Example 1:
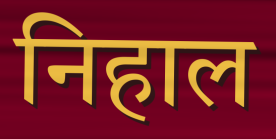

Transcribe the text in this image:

निहाल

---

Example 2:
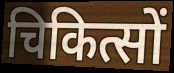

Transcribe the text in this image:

चिकित्सों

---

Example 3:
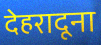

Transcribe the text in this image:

देहरादूना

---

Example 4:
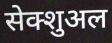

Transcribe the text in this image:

सेक्शुअल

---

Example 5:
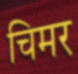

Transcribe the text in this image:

चिमर